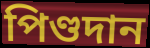
পিণ্ডদান